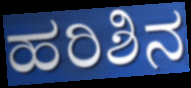
ಹರಿಶಿನ